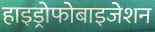
हाइड्रोफोबाइजेशन